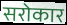
सरोकार